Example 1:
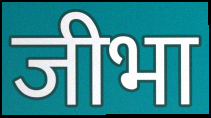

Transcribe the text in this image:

जीभा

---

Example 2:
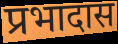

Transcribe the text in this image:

प्रभादास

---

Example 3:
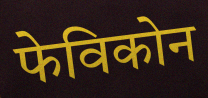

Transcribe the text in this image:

फेविकोन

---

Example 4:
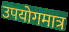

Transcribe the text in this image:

उपयोगमात्र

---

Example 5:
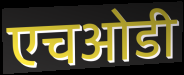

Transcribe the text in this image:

एचओडी